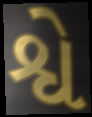
શ્વે